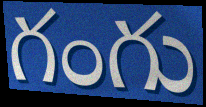
గంగు